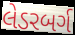
લેડરબર્ગ